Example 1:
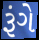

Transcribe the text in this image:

રૂંગે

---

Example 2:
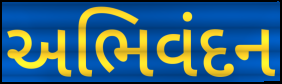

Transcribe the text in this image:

અભિવંદન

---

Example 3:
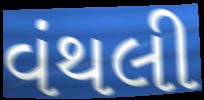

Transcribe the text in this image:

વંથલી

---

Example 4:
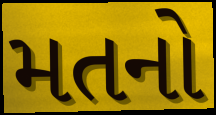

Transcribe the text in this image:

મતનો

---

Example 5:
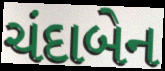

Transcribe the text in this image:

ચંદાબેન